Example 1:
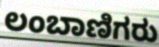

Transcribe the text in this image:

ಲಂಬಾಣಿಗರು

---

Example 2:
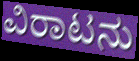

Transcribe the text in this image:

ವಿರಾಟನು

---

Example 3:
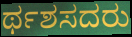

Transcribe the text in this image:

ರ್ಥಶಸದರು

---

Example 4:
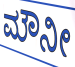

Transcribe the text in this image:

ಮೌನೀ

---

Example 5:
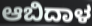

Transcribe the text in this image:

ಆಬಿದಾಳ